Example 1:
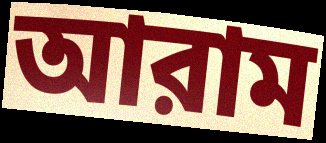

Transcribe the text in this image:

আরাম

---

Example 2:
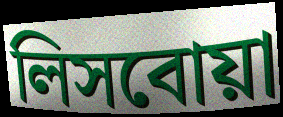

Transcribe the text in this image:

লিসবোয়া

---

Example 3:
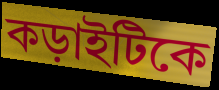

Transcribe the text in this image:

কড়াইটিকে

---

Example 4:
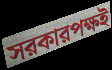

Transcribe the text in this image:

সরকারপক্ষই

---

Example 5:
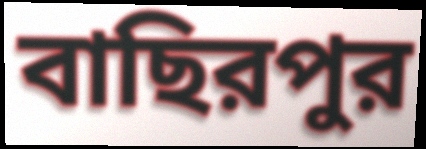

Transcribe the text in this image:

বাছিরপুর